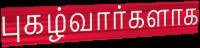
புகழ்வார்களாக